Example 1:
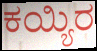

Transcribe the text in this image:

ಕಯ್ಯಿರ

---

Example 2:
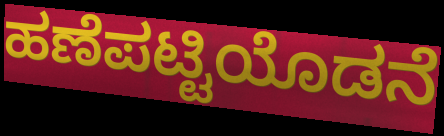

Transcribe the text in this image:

ಹಣೆಪಟ್ಟಿಯೊಡನೆ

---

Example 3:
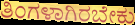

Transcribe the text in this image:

ತಿಂಗಳಾಗಿರಬೇಕು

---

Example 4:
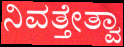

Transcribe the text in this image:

ನಿವತ್ತೇತ್ವಾ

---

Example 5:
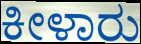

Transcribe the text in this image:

ಕೀಳಾರು